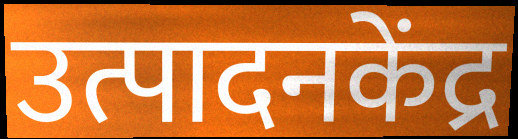
उत्पादनकेंद्र